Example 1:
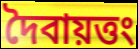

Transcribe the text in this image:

দৈবায়ত্তং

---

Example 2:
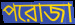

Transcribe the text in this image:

পরোজা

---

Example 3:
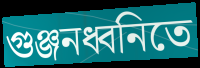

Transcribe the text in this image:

গুঞ্জনধ্বনিতে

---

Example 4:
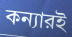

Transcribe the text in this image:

কন্যারই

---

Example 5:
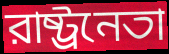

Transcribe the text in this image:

রাষ্ট্রনেতা